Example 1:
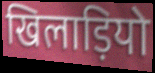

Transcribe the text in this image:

खिलाड़ियो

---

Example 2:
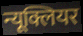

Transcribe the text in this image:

न्‍यूक्लियर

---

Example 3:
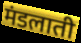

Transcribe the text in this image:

मंडलाती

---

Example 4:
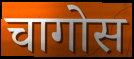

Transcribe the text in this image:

चागोस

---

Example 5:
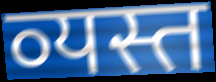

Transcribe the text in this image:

व्‍यस्‍त